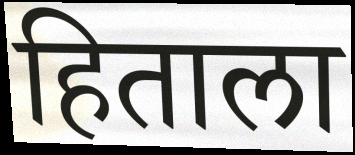
हिताला